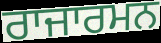
ਰਾਜਾਰਮਨ